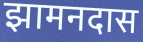
झामनदास